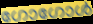
ഗോഗോൾ